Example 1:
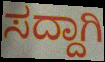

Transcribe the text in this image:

ಸದ್ದಾಗಿ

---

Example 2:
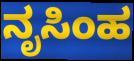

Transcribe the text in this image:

ನೃಸಿಂಹ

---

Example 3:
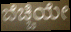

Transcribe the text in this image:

ಬೆಚ್ಚಿಯೇ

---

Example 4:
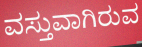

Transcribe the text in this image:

ವಸ್ತುವಾಗಿರುವ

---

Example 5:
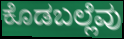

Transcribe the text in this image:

ಕೊಡಬಲ್ಲೆವು